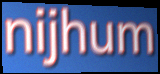
nijhum